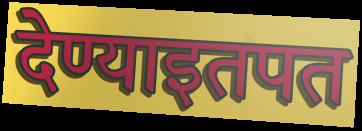
देण्याइतपत